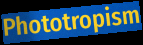
Phototropism